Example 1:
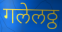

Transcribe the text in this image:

गलेलठ्ठ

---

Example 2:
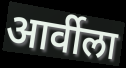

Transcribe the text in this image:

आर्वीला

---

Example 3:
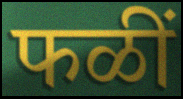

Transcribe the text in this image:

फळीं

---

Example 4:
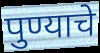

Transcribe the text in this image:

पुण्याचे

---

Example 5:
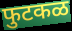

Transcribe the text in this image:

फुटकळ